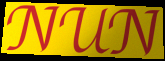
NUN